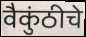
वैकुंठीचे